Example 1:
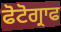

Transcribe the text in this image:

ਫੋਟੋਗ੍ਰਾਫ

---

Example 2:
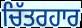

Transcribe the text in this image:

ਚਿੱਤਰਹਾਰ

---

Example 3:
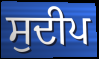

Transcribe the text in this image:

ਸੁਦੀਪ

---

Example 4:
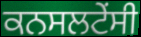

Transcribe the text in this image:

ਕਨਸਲਟੇਂਸੀ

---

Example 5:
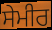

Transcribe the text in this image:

ਸੇਮੀਰ